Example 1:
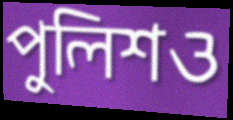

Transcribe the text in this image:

পুলিশও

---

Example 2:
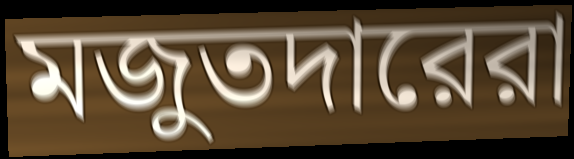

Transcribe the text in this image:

মজুতদারেরা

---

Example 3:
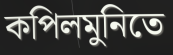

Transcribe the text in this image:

কপিলমুনিতে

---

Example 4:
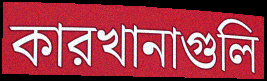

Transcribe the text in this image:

কারখানাগুলি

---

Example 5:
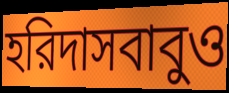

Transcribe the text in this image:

হরিদাসবাবুও